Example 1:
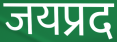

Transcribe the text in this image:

जयप्रद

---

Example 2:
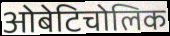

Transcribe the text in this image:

ओबेटिचोलिक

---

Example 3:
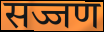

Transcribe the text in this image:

सज्जण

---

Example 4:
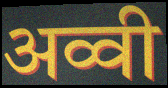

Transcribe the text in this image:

अव्वी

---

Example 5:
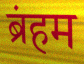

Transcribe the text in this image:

ब्रंहम